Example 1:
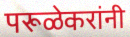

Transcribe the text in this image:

परूळेकरांनी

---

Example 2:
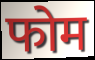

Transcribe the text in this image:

फोम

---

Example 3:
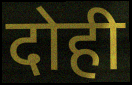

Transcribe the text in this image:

दोही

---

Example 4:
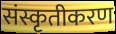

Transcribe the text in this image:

संस्कृतीकरण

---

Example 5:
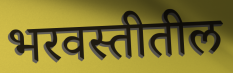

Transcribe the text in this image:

भरवस्तीतील